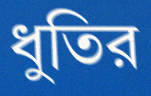
ধুতির